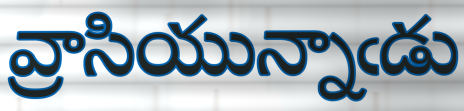
వ్రాసియున్నాఁడు